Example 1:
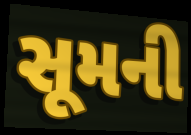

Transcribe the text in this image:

સૂમની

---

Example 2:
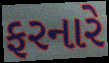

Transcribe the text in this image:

ફરનારે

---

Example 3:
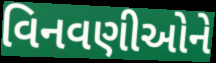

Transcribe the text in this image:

વિનવણીઓને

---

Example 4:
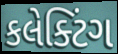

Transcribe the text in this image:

કલેક્ટિંગ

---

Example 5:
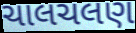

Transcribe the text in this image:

ચાલચલણ